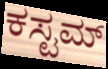
ಕಸ್ಟಮ್